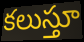
కలుస్తూ